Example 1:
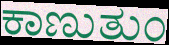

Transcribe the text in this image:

ಕಾಣುತುಂ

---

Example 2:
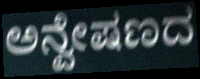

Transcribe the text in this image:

ಅನ್ವೇಷಣದ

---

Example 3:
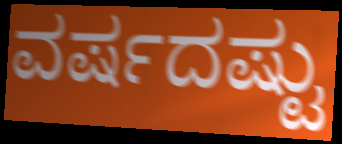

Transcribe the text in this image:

ವರ್ಷದಷ್ಟು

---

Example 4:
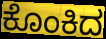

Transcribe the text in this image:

ಕೊಂಕಿದ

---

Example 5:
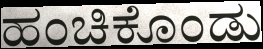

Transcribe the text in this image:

ಹಂಚಿಕೊಂಡು